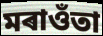
মৰাওঁতা